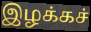
இழக்கச்